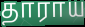
தாராய